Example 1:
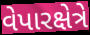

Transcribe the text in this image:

વેપારક્ષેત્રે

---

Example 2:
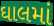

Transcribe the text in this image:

ઘાલમાં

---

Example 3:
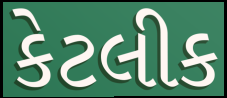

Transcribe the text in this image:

કેટલીક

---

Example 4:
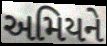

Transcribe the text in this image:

અમિયને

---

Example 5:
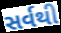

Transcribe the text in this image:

સર્વથી